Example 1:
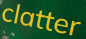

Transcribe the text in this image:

clatter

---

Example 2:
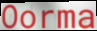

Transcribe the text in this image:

Oorma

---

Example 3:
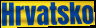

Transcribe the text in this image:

Hrvatsko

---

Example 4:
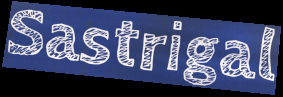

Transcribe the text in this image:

Sastrigal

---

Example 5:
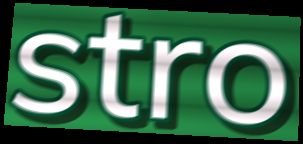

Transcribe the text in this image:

stro